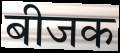
बीजक